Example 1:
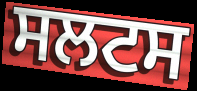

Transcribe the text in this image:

ਸਲਟਸ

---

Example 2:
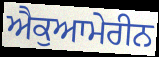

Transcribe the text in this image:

ਐਕੁਆਮੇਰੀਨ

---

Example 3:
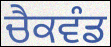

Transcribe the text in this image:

ਚੈਕਵੰਡ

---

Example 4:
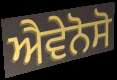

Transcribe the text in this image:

ਐਵੇਨੋਸੋ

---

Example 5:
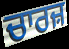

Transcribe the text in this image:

ਚਾਰਜ਼